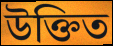
উক্তিত